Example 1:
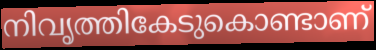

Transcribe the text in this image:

നിവൃത്തികേടുകൊണ്ടാണ്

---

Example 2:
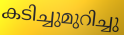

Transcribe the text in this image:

കടിച്ചുമുറിച്ചു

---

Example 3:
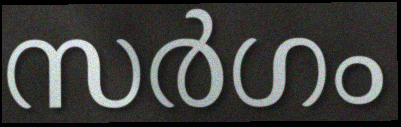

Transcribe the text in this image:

സർഗം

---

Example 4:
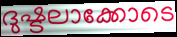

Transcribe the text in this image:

ദുഷ്ടലാക്കോടെ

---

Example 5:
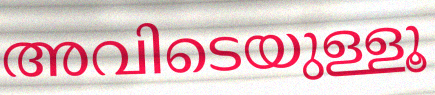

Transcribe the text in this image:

അവിടെയുള്ളൂ